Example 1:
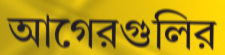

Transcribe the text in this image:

আগেরগুলির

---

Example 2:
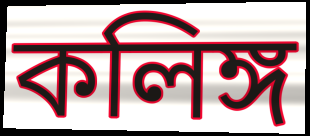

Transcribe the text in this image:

কলিঙ্গ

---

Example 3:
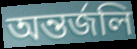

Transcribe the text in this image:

অন্তর্জলি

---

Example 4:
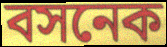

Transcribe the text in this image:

বসনেক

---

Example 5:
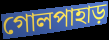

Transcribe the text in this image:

গোলপাহাড়